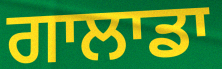
ਗਾਲਾਡਾ